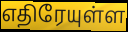
எதிரேயுள்ள